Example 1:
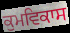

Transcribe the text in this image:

ਕੁਮਵਿਕਾਸ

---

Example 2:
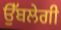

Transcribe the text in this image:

ਉੱਬਲੇਗੀ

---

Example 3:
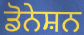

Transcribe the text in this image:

ਡੋਨੇਸ਼ਨ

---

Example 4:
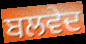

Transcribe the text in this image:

ਬਲਵੇਦ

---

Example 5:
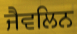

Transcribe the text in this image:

ਜੈਵਲਿਨ